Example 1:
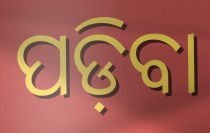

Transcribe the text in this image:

ପଡ଼ିବା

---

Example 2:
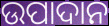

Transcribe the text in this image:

ଉପାଦାନ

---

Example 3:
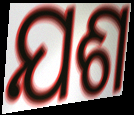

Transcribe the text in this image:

ଯଶ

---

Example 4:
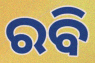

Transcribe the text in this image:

ରବି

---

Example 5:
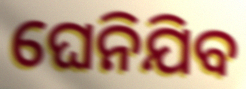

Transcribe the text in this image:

ଘେନିଯିବ